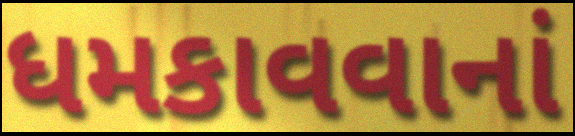
ધમકાવવાનાં